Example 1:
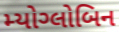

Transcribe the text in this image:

મ્યોગ્લોબિન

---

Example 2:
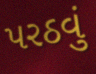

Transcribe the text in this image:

પરઠવું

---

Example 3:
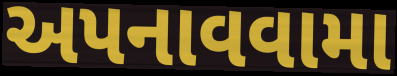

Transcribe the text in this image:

અપનાવવામા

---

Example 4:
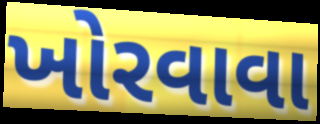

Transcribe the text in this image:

ખોરવાવા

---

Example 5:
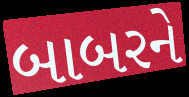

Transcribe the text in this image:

બાબરને